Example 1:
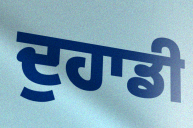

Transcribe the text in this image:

ਦੁਹਾਡੀ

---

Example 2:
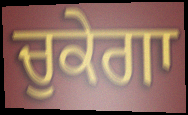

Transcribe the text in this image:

ਚੁਕੇਗਾ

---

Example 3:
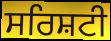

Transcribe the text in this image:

ਸਰਿਸ਼ਟੀ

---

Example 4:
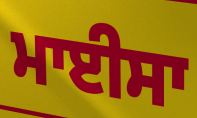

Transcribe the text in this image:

ਮਾਈਸਾ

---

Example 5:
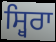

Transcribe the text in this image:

ਸ੍ਥਿਰਾ